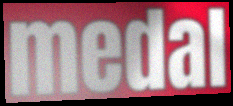
medal